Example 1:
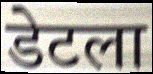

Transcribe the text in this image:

डेटला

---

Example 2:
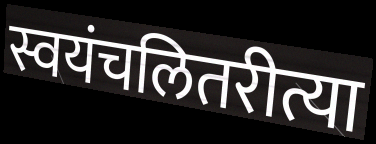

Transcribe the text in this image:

स्वयंचलितरीत्या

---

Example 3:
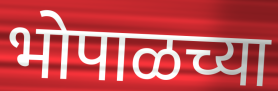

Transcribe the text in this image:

भोपाळच्या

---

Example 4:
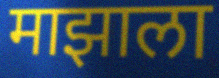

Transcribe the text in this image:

माझाला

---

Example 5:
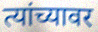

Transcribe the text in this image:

त्यांच्यावर